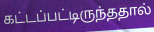
கட்டப்பட்டிருந்ததால்